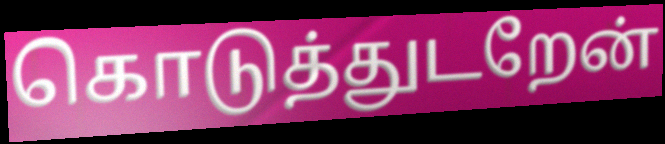
கொடுத்துடறேன்